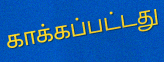
காக்கப்பட்டது